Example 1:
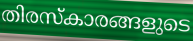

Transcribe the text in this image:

തിരസ്കാരങ്ങളുടെ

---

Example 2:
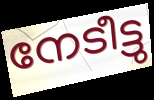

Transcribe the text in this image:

നേടീട്ടു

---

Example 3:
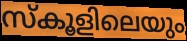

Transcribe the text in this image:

സ്കൂളിലെയും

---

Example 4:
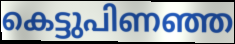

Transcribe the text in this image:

കെട്ടുപിണഞ്ഞ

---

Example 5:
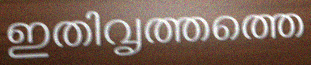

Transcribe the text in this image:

ഇതിവൃത്തത്തെ